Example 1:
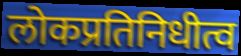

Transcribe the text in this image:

लोकप्रतिनिधीत्व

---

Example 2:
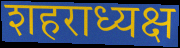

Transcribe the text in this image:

शहराध्यक्ष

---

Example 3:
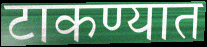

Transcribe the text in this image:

टाकण्यात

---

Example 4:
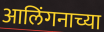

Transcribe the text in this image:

आलिंगनाच्या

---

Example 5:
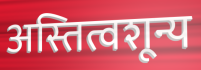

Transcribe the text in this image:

अस्तित्वशून्य